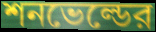
শনভেল্ডের